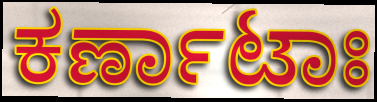
ಕರ್ಣಾಟಾಃ